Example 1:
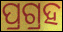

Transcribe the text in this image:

ପ୍ରଗ୍ରହ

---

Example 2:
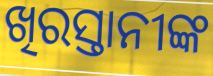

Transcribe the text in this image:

ଖିରସ୍ତାନୀଙ୍କ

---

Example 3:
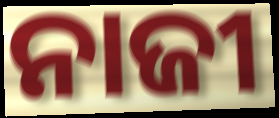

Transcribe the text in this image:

ନାଜୀ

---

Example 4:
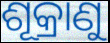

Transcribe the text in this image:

ଶୂକ୍ରାଣୁ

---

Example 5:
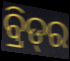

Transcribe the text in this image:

ବ୍ରିଡ୍‌ର